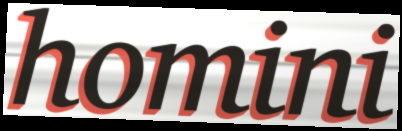
homini